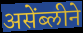
असेंब्लीने